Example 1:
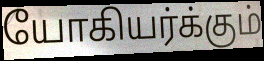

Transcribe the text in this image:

யோகியர்க்கும்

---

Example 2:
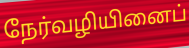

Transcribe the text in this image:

நேர்வழியினைப்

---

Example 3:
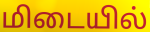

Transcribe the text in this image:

மிடையில்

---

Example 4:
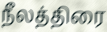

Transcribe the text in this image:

நீலத்திரை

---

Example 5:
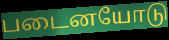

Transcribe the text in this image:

படைனயோடு